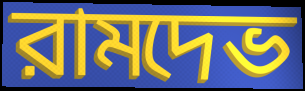
রামদেভ